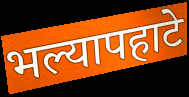
भल्यापहाटे